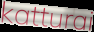
katturai